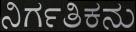
ನಿರ್ಗತಿಕನು